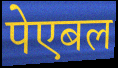
पेएबल